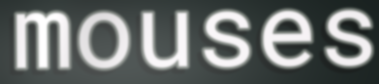
mouses